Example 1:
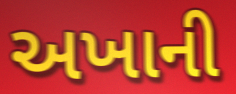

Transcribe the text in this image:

અખાની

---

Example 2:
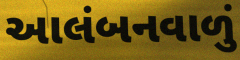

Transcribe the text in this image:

આલંબનવાળું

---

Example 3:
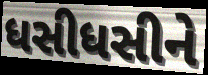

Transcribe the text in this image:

ધસીધસીને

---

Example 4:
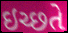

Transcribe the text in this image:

ઇચ્છતે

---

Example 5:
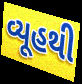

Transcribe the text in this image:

વ્યૂહથી